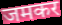
जमकर